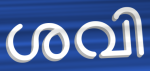
ശവി